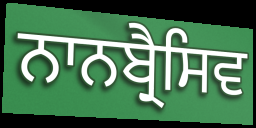
ਨਾਨਬ੍ਰੈਸਿਵ